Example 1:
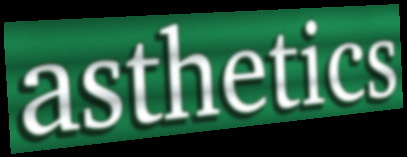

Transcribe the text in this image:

asthetics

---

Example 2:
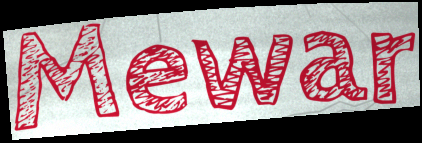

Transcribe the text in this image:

Mewar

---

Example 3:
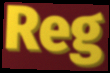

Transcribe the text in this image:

Reg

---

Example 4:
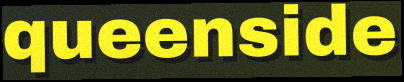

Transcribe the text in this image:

queenside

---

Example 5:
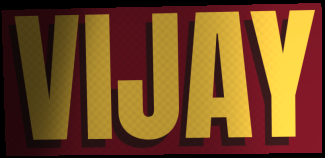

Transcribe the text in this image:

VIJAY